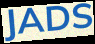
JADS